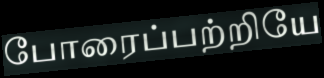
போரைப்பற்றியே